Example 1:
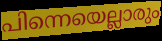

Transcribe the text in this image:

പിന്നെയെല്ലാരും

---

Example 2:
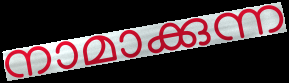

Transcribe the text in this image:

നാമാക്കുന്ന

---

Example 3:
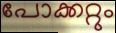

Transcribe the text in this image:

പോക്കറ്റും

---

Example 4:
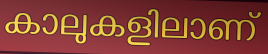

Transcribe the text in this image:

കാലുകളിലാണ്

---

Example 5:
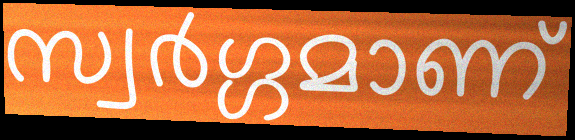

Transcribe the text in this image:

സ്വർഗ്ഗമാണ്